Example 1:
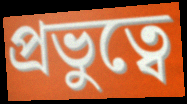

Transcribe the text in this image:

প্রভুত্বে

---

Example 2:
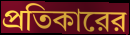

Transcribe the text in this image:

প্রতিকারের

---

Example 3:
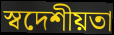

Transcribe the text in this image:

স্বদেশীয়তা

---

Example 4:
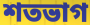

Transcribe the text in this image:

শতভাগ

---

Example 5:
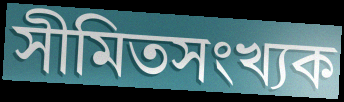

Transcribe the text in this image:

সীমিতসংখ্যক